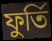
ফুর্তি